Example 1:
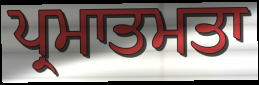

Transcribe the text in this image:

ਪ੍ਰਮਾਤਮਤਾ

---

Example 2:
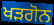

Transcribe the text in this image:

ਖੜਗੋਨ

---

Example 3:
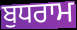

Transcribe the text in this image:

ਬੁਧਰਾਮ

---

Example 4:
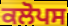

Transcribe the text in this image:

ਕਲੋਪਸ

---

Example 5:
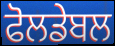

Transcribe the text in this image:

ਫੋਲਡੇਬਲ